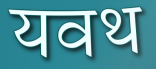
यवथ